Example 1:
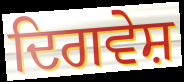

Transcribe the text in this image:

ਦਿਗਵੇਸ਼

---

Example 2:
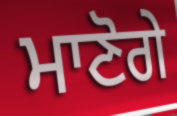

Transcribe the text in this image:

ਮਾਣੋਗੇ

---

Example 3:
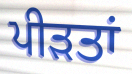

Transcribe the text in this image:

ਪੀਡ਼ਤਾਂ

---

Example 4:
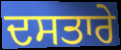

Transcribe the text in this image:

ਦਸਤਾਰੇ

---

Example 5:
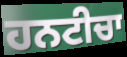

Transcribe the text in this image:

ਹਨਟੀਚਾ